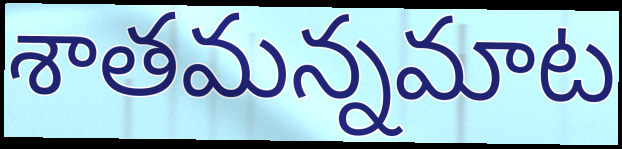
శాతమన్నమాట